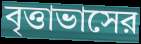
বৃত্তাভাসের